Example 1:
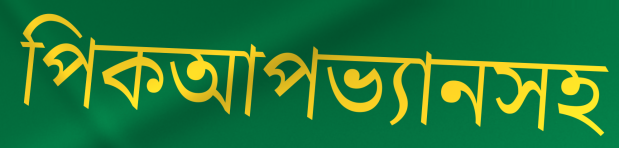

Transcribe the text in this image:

পিকআপভ্যানসহ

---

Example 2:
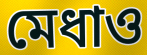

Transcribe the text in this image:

মেধাও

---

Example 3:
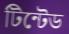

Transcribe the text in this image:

টিন্টেড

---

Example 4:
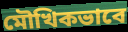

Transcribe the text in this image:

মৌখিকভাবে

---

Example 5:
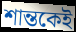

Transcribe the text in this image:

শান্তকেই